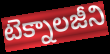
టెక్నాలజీని